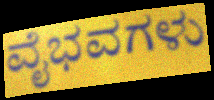
ವೈಭವಗಳು